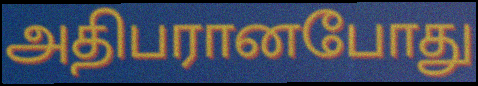
அதிபரானபோது